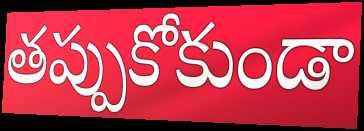
తప్పుకోకుండా